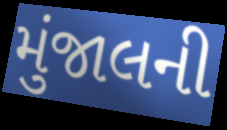
મુંજાલની